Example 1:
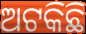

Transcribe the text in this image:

ଅଟକିଛି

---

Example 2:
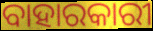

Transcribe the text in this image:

ବାହାରକାରୀ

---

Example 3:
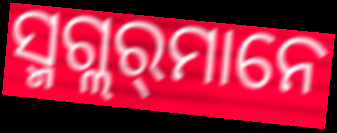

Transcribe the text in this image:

ସ୍ମଗ୍ଲର୍‌ମାନେ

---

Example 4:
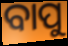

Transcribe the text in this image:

ବାପୁ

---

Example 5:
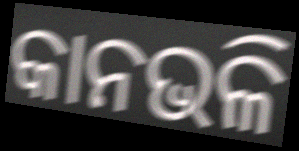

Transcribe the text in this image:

କାନଭଳି